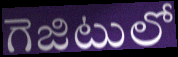
గెజిటులో